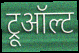
ट्रूऑल्ट